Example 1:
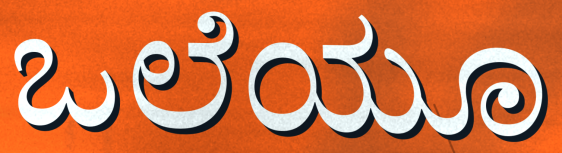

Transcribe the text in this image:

ಒಲೆಯೂ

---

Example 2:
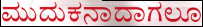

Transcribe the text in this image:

ಮುದುಕನಾದಾಗಲೂ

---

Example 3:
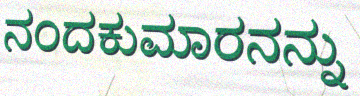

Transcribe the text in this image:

ನಂದಕುಮಾರನನ್ನು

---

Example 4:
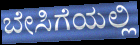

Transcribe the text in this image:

ಬೇಸಿಗೆಯಲ್ಲಿ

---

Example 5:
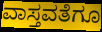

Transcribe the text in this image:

ವಾಸ್ತವತೆಗೂ